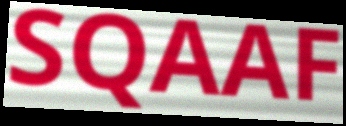
SQAAF